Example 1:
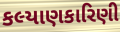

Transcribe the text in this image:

કલ્યાણકારિણી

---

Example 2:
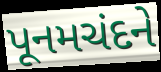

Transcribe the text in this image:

પૂનમચંદને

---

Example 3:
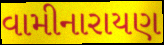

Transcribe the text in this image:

વામીનારાયણ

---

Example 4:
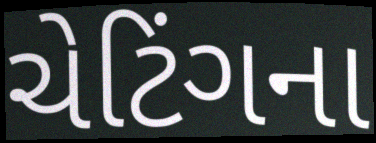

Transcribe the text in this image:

ચેટિંગના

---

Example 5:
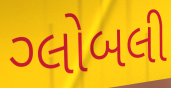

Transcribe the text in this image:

ગ્લોબલી